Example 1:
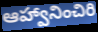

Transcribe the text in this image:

ఆహ్వానించిరి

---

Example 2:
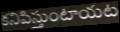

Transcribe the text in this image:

కనిపిస్తుంటాయట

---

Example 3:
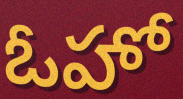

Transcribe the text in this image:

ఓహో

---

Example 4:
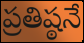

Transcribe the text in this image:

ప్రతిష్ఠనే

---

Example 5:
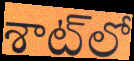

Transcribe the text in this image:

శాట్‌లో